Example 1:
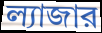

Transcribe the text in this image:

ল্যাজার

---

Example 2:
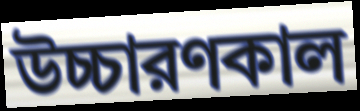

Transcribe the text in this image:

উচ্চারণকাল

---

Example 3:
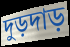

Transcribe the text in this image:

দুড়দাড়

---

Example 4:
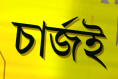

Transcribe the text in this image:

চার্জই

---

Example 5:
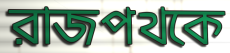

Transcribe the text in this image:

রাজপথকে